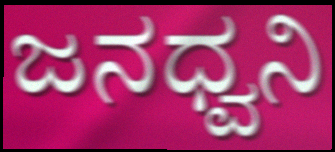
ಜನಧ್ವನಿ